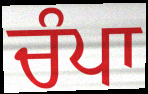
ਚੰਪਾ